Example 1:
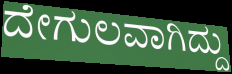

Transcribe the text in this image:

ದೇಗುಲವಾಗಿದ್ದು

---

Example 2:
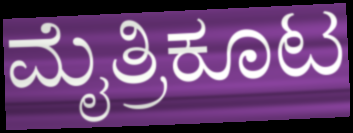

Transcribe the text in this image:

ಮೈತ್ರಿಕೂಟ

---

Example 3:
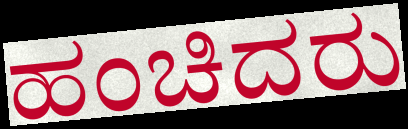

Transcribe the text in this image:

ಹಂಚಿದರು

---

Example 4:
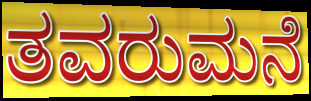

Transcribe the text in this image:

ತವರುಮನೆ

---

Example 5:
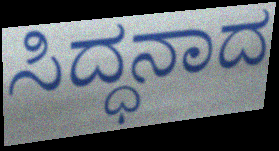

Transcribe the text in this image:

ಸಿದ್ಧನಾದ